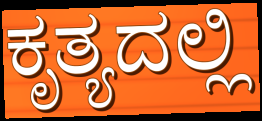
ಕೃತ್ಯದಲ್ಲಿ